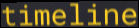
timeline